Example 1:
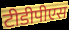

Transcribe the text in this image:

टीडीपीएस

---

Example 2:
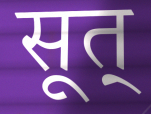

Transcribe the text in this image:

सूत्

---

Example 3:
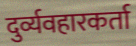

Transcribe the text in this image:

दुर्व्यवहारकर्ता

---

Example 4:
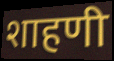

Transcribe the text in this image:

शाहणी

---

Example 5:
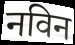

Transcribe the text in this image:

नविन